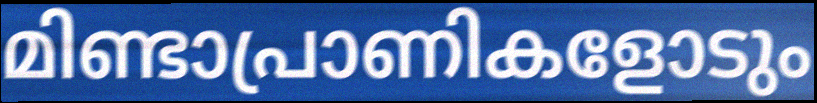
മിണ്ടാപ്രാണികളോടും